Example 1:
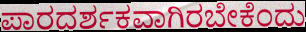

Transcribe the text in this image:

ಪಾರದರ್ಶಕವಾಗಿರಬೇಕೆಂದು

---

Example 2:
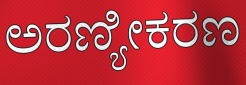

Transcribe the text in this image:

ಅರಣ್ಯೀಕರಣ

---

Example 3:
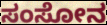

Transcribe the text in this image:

ಸಂಸೋನ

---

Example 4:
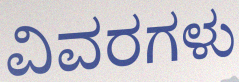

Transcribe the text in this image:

ವಿವರಗಳು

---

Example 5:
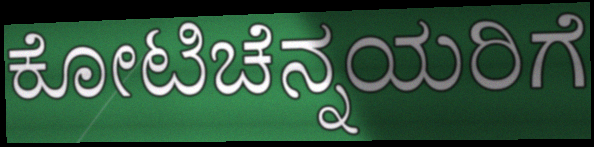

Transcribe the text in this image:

ಕೋಟಿಚೆನ್ನಯರಿಗೆ